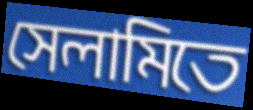
সেলামিতে